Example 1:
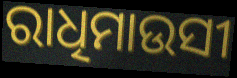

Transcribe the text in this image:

ରାଧିମାଉସୀ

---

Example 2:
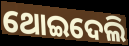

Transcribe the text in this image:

ଥୋଇଦେଲି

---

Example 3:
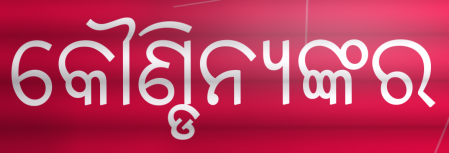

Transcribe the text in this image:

କୌଣ୍ଡିନ୍ୟଙ୍କର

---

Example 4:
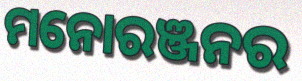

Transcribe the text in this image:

ମନୋରଞ୍ଜନର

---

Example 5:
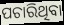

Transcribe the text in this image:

ପଚାରିଥିବା